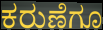
ಕರುಣೆಗೂ